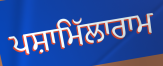
ਪਸ਼ਾਮਿੱਲਾਰਾਮ